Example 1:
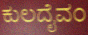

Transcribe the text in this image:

ಕುಲದೈವಂ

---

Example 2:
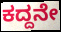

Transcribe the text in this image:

ಕದ್ದನೇ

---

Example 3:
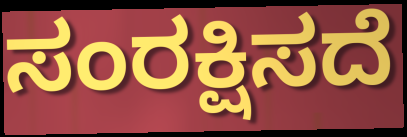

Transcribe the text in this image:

ಸಂರಕ್ಷಿಸದೆ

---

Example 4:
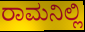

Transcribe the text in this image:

ರಾಮನಿಲ್ಲಿ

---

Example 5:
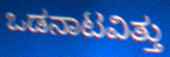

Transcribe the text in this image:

ಒಡನಾಟವಿತ್ತು